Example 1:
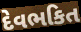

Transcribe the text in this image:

દેવભકિત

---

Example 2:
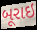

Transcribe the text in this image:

બૂરાઇ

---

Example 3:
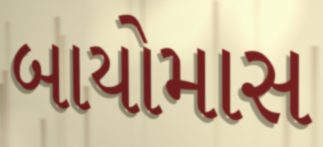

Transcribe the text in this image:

બાયોમાસ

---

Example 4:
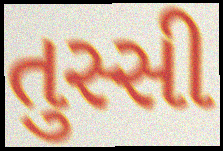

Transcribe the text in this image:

તુસ્સી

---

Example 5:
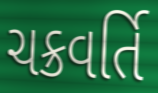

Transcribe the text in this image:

ચક્રવર્તિ